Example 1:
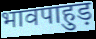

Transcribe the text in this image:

भावपाहुड़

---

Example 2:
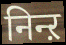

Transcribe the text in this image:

निन्ऱ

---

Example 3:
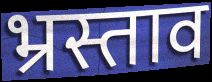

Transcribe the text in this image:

भ्रस्ताव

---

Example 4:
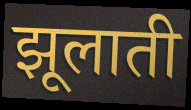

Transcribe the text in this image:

झूलाती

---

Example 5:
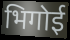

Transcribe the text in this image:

भिगोई